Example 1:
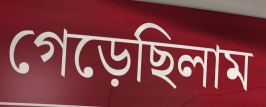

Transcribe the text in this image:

গেড়েছিলাম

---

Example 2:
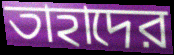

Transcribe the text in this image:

তাহাদের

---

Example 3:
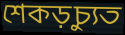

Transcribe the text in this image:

শেকড়চ্যুত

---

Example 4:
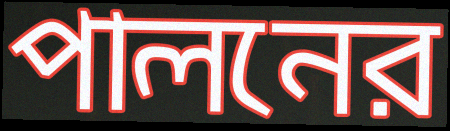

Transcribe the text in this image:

পালনের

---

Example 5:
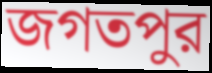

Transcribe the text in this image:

জগতপুর